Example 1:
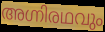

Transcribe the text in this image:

അഗ്നിരഥവും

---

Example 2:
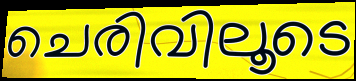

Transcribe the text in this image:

ചെരിവിലൂടെ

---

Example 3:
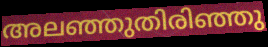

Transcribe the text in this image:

അലഞ്ഞുതിരിഞ്ഞു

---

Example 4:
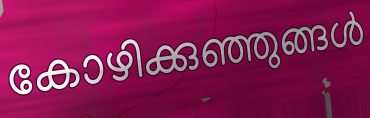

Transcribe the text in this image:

കോഴിക്കുഞ്ഞുങ്ങൾ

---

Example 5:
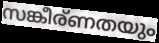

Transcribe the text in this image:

സങ്കീര്ണതയും